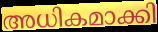
അധികമാക്കി